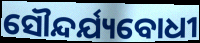
ସୌନ୍ଦର୍ଯ୍ୟବୋଧୀ